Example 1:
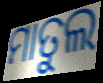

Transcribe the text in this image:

ମାତୁଲ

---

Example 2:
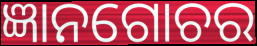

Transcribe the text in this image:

ଜ୍ଞାନଗୋଚର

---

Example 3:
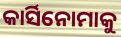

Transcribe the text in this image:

କାର୍ସିନୋମାକୁ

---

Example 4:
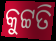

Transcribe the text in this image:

କୁଟ୍ଟତି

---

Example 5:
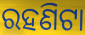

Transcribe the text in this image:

ରହଣିଟା